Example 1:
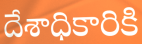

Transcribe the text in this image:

దేశాధికారికి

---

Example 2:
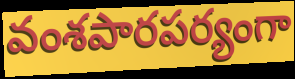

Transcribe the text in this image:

వంశపారపర్యంగా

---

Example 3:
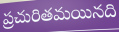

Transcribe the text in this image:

ప్రచురితమయినది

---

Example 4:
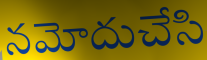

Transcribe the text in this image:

నమోదుచేసి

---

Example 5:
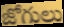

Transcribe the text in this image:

జోగులు